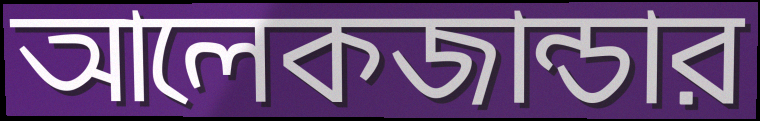
আলেকজান্ডার